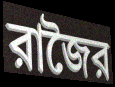
রাজৈর